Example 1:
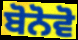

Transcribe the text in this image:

ਬੋਨੋਵੋ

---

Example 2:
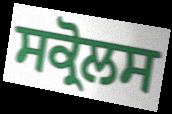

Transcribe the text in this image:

ਸਕ੍ਰੋਲਸ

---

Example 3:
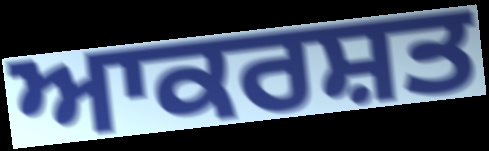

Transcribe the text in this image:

ਆਕਰਸ਼ਤ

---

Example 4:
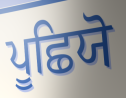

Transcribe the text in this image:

ਪੂਛਿਯੋ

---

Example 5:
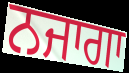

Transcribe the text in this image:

ਨਜਾਗਾ